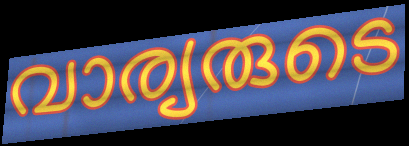
വാര്യരുടെ